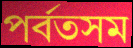
পর্বতসম